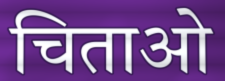
चिताओ